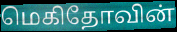
மெகிதோவின்